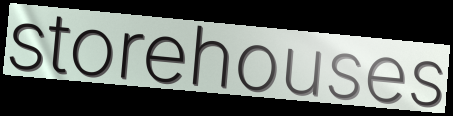
storehouses